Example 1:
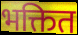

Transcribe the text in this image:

भक्तित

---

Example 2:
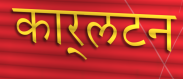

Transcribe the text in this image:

कार्लटन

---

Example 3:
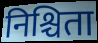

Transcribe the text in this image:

निश्चिता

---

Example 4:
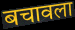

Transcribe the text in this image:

बचावला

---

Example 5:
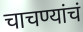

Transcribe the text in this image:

चाचण्यांचं